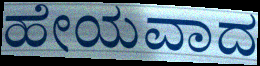
ಹೇಯವಾದ